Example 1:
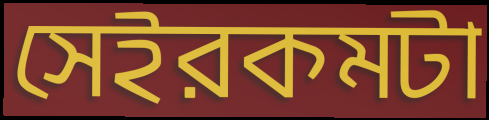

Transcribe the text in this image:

সেইরকমটা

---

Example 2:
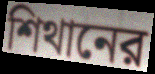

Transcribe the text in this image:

শিথানের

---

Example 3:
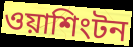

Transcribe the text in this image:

ওয়াশিংটন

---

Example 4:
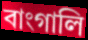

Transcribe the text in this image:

বাংগালি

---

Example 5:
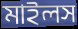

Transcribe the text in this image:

মাইলস